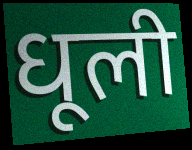
धूली